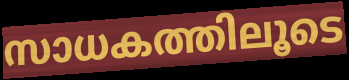
സാധകത്തിലൂടെ